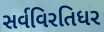
સર્વવિરતિધર